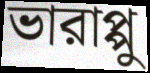
ভারাপ্পু